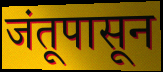
जंतूपासून